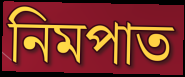
নিমপাত